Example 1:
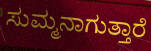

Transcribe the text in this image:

ಸುಮ್ಮನಾಗುತ್ತಾರೆ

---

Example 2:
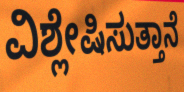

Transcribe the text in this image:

ವಿಶ್ಲೇಷಿಸುತ್ತಾನೆ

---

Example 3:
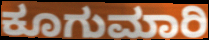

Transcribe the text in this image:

ಕೂಗುಮಾರಿ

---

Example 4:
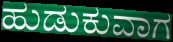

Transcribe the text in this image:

ಹುಡುಕುವಾಗ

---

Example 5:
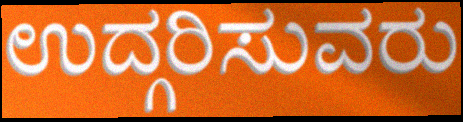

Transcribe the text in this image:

ಉದ್ಗರಿಸುವರು